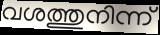
വശത്തുനിന്ന്